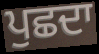
ਪੁਛਦਾ